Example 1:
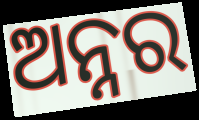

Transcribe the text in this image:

ଅନ୍ନର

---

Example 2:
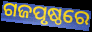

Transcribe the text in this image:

ଗଜପୃଷ୍ଠରେ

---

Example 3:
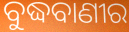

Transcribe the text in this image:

ବୁଦ୍ଧବାଣୀର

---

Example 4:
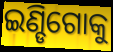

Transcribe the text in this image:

ଇଣ୍ଡିଗୋକୁ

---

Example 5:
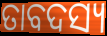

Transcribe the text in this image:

ତାବଦସ୍ୟ